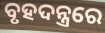
ବୃହଦନ୍ତ୍ରରେ